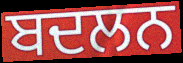
ਬਦਲਨ